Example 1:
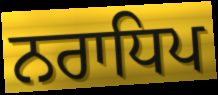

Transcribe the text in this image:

ਨਰਾਧਿਪ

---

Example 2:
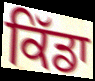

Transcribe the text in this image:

ਕਿੱਡਾ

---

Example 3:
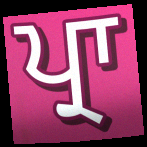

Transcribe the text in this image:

ਪ੍ਰਾ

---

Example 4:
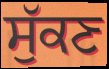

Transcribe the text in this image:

ਸੁੱਕਣ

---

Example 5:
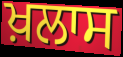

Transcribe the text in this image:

ਖ਼ਲਾਸ